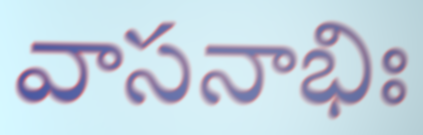
వాసనాభిః